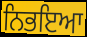
ਨਿਭਇਆ